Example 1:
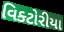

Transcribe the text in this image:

વિક્ટોરીયા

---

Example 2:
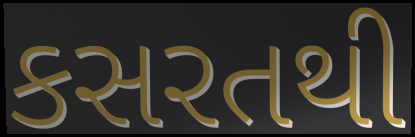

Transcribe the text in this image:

કસરતથી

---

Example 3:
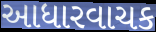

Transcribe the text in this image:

આધારવાચક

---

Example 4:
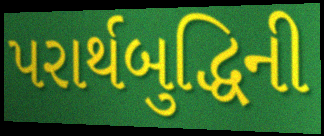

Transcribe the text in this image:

પરાર્થબુદ્ધિની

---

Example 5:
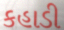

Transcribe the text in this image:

કહાડી